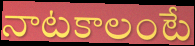
నాటకాలంటే